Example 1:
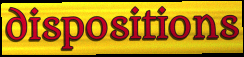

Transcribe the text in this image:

dispositions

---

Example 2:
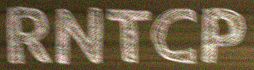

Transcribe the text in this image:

RNTCP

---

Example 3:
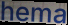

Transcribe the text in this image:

hema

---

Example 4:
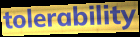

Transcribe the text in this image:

tolerability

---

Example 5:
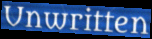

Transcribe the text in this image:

Unwritten